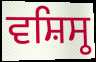
ਵਸ਼ਿਸ੍ਠ